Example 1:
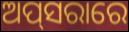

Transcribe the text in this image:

ଅପ୍‌ସରାରେ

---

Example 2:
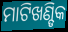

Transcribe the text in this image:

ମାଟିଖଣ୍ଡିକ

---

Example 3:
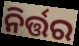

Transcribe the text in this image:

ନିର୍ତ୍ତର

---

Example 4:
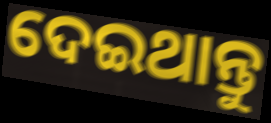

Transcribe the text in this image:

ଦେଇଥାନ୍ତୁ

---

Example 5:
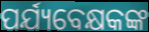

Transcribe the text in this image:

ପର୍ଯ୍ୟବେକ୍ଷକଙ୍କ